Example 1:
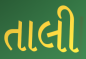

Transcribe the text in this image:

તાલી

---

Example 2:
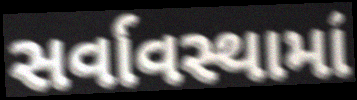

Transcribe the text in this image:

સર્વાવસ્થામાં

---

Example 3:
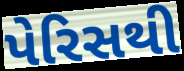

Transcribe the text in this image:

પેરિસથી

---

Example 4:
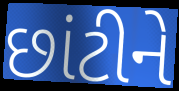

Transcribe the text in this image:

છાંટીને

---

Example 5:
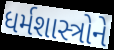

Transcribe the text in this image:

ધર્મશાસ્ત્રોને